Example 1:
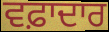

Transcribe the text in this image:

ਵਫ਼ਾਦਾਰ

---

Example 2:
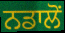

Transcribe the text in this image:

ਨਡਾਲੋਂ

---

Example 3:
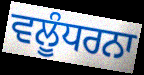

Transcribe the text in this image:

ਵਲੂੰਧਰਨਾ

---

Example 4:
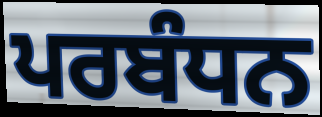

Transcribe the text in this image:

ਪਰਬੰਧਨ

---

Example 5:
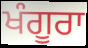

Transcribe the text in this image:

ਖੰਗੂਰਾ